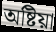
অষ্টিয়া